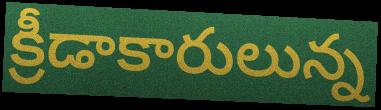
క్రీడాకారులున్న